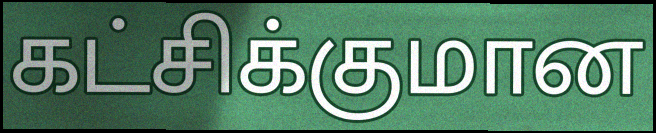
கட்சிக்குமான